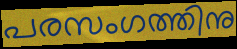
പരസംഗത്തിനു